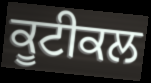
ਕੂਟੀਕਲ